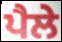
ਪੈਲੇ